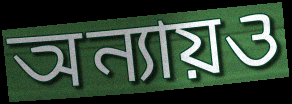
অন্যায়ও